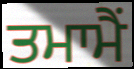
ਤਮਾਮੈਂ